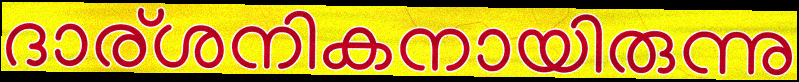
ദാര്ശനികനായിരുന്നു